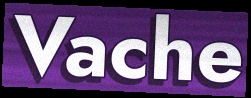
Vache